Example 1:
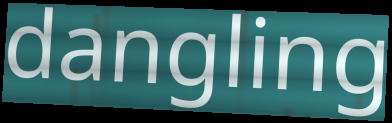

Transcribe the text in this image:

dangling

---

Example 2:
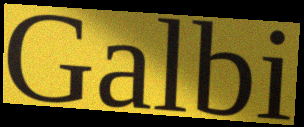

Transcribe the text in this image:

Galbi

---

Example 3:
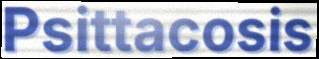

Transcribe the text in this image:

Psittacosis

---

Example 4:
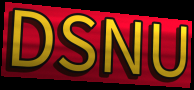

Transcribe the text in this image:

DSNU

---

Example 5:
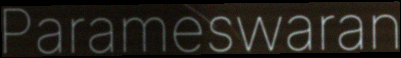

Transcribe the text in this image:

Parameswaran